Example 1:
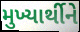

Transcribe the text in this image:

મુખ્યાર્થીને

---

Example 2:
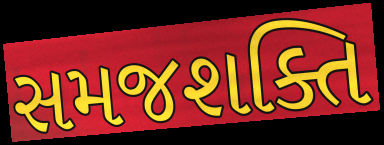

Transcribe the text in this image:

સમજશક્તિ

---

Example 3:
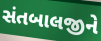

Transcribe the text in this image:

સંતબાલજીને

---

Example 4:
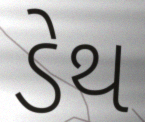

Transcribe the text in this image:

ડેથ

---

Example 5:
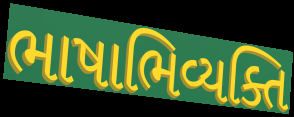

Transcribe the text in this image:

ભાષાભિવ્યક્તિ